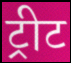
ट्रीट